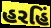
હરહિં